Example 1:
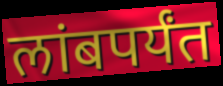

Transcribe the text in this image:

लांबपर्यंत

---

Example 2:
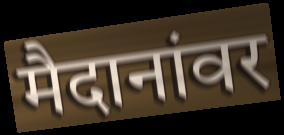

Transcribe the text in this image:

मैदानांवर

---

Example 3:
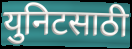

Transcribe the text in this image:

युनिटसाठी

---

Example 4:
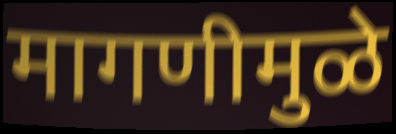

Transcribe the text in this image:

मागणीमुळे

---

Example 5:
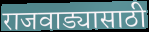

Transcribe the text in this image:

राजवाड्यासाठी